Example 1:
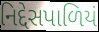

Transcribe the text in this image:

નિદ્દેસપાળિયં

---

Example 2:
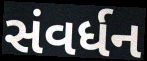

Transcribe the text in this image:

સંવર્ધન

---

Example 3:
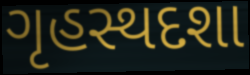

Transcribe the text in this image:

ગૃહસ્થદશા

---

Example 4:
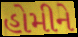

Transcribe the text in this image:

હોમીને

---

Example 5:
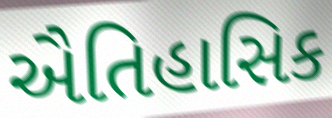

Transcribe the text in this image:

ઐતિહાસિક